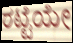
ರಟ್ಟೆಯೇ